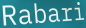
Rabari